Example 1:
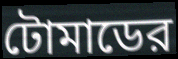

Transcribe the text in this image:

টোমাডের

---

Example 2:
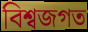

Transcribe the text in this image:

বিশ্বজগত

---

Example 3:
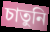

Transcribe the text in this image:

চাতুনি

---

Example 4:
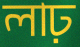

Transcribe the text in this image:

লাঢ়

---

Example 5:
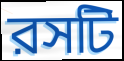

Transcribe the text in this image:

রসটি